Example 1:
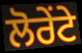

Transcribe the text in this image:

ਲੋਰੇਂਟੇ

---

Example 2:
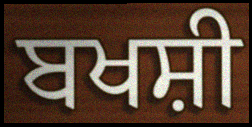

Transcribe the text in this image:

ਬਖਸ਼ੀ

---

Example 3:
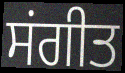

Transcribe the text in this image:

ਸਂਗੀਤ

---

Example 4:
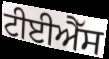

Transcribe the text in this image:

ਟੀਈਐੱਸ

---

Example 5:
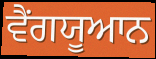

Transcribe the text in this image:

ਵੈਂਗਯੂਆਨ